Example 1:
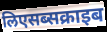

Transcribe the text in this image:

लिएसब्सक्राइब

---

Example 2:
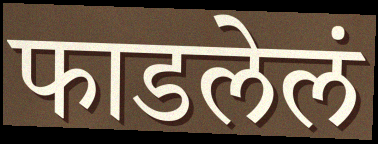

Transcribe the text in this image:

फाडलेलं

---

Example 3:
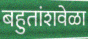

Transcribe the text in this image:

बहुतांशवेळा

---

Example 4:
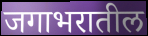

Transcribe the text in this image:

जगाभरातील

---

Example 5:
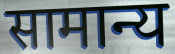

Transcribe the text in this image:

सामान्य